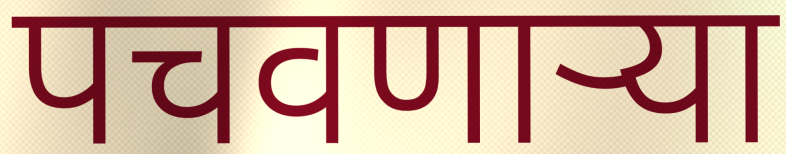
पचवणाऱ्या